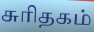
சுரிதகம்